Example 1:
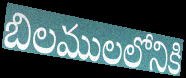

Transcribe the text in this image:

బిలములలోనికి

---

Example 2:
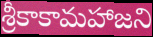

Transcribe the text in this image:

శ్రీకాకామహాజని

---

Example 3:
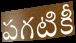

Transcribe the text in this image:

పగటికీ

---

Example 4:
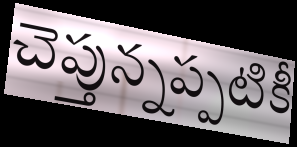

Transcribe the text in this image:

చెప్తున్నప్పటికీ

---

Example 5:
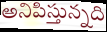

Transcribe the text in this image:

అనిపిస్తున్నది